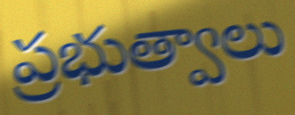
ప్రభుత్వాలు